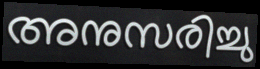
അനുസരിച്ചു